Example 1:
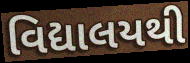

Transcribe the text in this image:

વિદ્યાલયથી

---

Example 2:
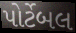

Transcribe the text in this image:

પોર્ટેબલ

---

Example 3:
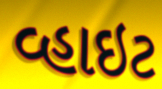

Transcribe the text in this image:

વ્હાઇટ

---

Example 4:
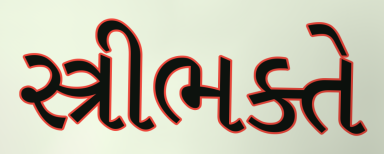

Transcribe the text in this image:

સ્ત્રીભક્તે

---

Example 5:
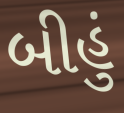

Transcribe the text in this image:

બીહું